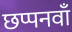
छप्पनवाँ